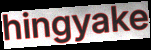
hingyake